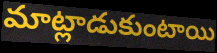
మాట్లాడుకుంటాయి